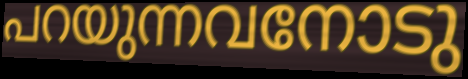
പറയുന്നവനോടു